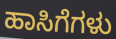
ಹಾಸಿಗೆಗಳು